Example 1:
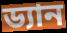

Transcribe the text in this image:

ড্যান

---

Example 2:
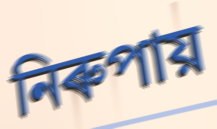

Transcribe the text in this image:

নিৰুপায়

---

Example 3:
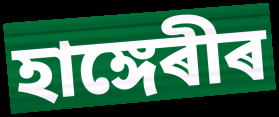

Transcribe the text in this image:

হাঙ্গেৰীৰ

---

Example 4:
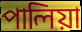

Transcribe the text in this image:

পালিয়া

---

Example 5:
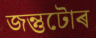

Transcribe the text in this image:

জন্তুটোৰ